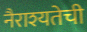
नैराश्यतेची